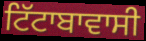
ਟਿੱਟਾਬਾਵਾਸੀ